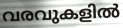
വരവുകളിൽ